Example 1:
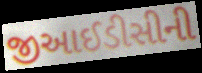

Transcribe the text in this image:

જીઆઈડીસીની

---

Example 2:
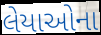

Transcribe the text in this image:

લેયાઓના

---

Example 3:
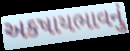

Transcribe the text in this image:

અકષાયભાવનું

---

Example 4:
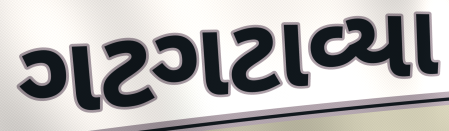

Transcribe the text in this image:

ગટગટાવ્યા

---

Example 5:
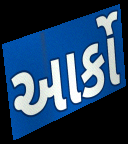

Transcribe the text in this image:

આર્કો